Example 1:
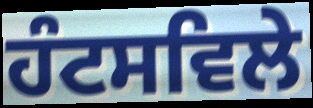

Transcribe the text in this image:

ਹੰਟਸਵਿਲੇ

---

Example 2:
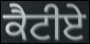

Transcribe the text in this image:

ਕੈਟੀਏ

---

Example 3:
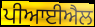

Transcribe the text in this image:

ਪੀਆਈਐਲ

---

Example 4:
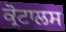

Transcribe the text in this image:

ਕ੍ਰੋਟਾਲਸ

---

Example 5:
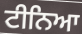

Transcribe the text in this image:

ਟੀਨਿਆ